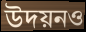
উদয়নও